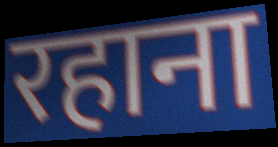
रहाना